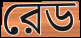
রেড